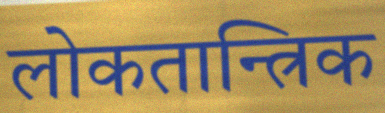
लोकतान्त्रिक